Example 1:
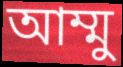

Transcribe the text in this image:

আম্মু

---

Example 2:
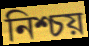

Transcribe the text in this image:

নিশ্চয়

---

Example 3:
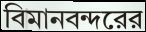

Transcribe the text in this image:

বিমানবন্দরের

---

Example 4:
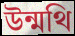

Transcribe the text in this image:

উন্মথি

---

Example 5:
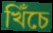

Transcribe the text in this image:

খিঁচে